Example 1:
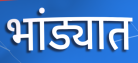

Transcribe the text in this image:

भांड्यात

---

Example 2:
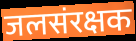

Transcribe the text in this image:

जलसंरक्षक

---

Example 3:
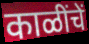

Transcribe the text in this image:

काळींचें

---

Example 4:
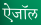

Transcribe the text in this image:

ऐजॉल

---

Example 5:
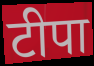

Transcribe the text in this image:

टीपा